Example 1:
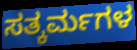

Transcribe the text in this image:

ಸತ್ಕರ್ಮಗಳ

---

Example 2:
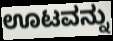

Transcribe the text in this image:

ಊಟವನ್ನು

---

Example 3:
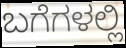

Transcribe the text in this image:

ಬಗೆಗಳಲ್ಲಿ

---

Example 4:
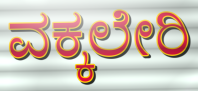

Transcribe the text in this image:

ವಕ್ಕಲೇರಿ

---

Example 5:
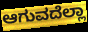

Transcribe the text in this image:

ಆಗುವದೆಲ್ಲಾ